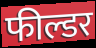
फील्डर